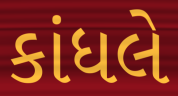
કાંધલે